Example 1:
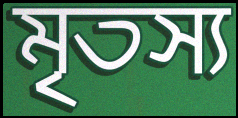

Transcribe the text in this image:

মৃতস্য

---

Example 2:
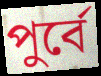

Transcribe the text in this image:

পুর্বে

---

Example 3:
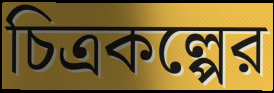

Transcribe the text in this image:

চিত্রকল্পের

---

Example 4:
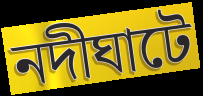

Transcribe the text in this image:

নদীঘাটে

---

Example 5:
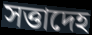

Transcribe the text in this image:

সত্তাদেহ